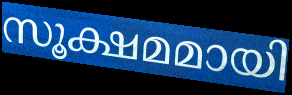
സൂക്ഷമമായി